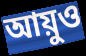
আয়ুও